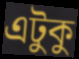
এটুকু